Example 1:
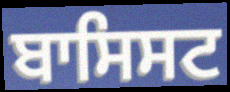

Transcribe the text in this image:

ਬਾਸਿਸਟ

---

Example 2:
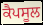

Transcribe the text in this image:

ਕੈਪਸੂਲ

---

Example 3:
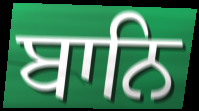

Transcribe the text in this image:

ਬਾਨਿ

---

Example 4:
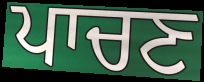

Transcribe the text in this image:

ਪਾਚਣ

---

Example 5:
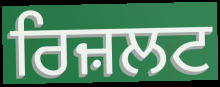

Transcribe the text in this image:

ਰਿਜ਼ਲਟ